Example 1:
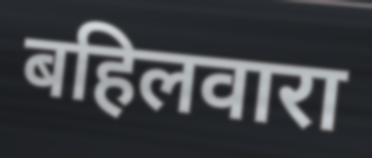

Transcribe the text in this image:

बहिलवारा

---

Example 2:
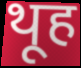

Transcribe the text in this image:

थूह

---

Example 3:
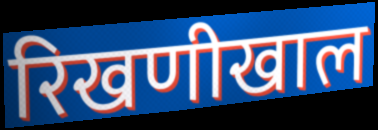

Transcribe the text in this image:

रिखणीखाल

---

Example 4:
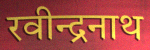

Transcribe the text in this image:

रवीन्‍द्रनाथ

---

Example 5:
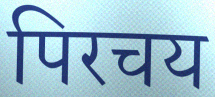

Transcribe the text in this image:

पिरचय